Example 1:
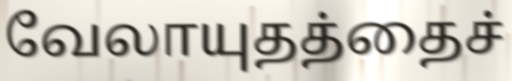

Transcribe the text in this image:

வேலாயுதத்தைச்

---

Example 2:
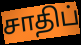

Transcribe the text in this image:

சாதிப்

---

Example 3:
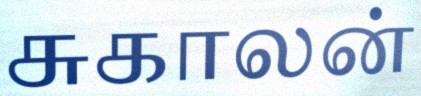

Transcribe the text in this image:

சுகாலன்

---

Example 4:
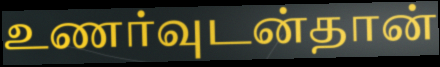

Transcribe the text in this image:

உணர்வுடன்தான்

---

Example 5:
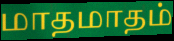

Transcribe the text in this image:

மாதமாதம்